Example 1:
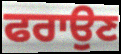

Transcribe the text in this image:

ਫਰਾਉਣ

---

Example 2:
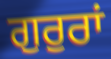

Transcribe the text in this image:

ਗੁਰੁਰਾਂ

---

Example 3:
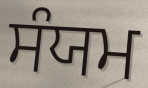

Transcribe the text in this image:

ਸੰਯਮ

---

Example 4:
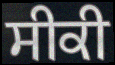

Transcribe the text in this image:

ਸੀਕੀ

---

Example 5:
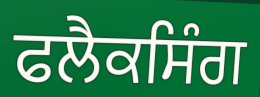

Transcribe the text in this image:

ਫਲੈਕਸਿੰਗ